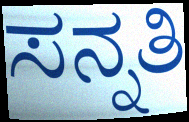
ಸನ್ನತಿ